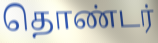
தொண்டர்